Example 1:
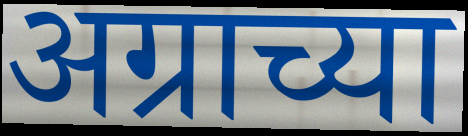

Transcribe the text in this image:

अग्राच्या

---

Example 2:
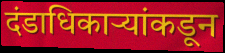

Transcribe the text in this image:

दंडाधिकाऱ्यांकडून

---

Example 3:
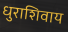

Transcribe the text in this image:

धुराशिवाय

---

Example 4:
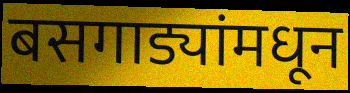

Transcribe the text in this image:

बसगाड्यांमधून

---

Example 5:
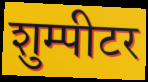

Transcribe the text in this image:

शुम्पीटर